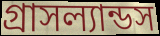
গ্রাসল্যান্ডস